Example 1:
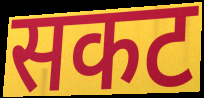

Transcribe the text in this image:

सकट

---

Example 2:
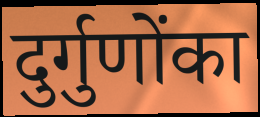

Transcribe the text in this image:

दुर्गुणोंका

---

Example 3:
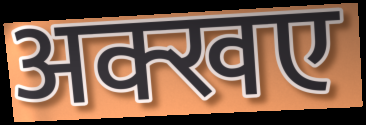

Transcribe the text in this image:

अक्खए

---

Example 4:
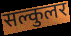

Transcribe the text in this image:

सल्कुलर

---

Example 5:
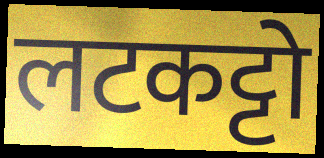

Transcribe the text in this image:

लटकट्टो